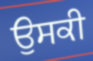
ਉਸਕੀ